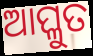
ଆପ୍ଳୁତ